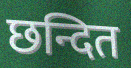
छन्दित